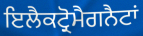
ਇਲੈਕਟ੍ਰੋਮੈਗਨੈਟਾਂ